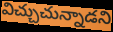
విచ్చుచున్నాడని